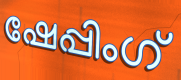
ഷേപ്പിംഗ്